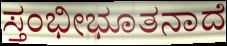
ಸ್ತಂಭೀಭೂತನಾದೆ